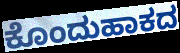
ಕೊಂದುಹಾಕದ